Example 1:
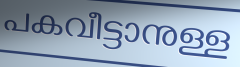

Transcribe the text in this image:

പകവീട്ടാനുള്ള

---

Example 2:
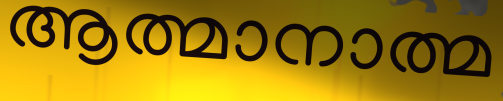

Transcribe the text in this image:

ആത്മാനാത്മ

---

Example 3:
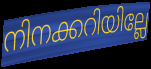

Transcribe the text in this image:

നിനക്കറിയില്ലേ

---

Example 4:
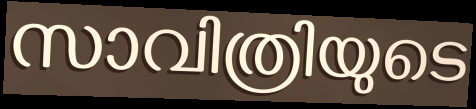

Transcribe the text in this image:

സാവിത്രിയുടെ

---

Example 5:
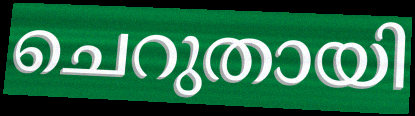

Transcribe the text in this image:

ചെറുതായി